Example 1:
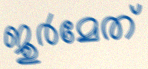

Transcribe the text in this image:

ജുർമേത്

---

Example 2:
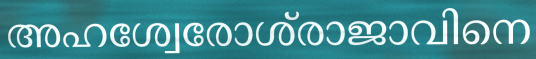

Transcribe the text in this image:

അഹശ്വേരോശ്‌രാജാവിനെ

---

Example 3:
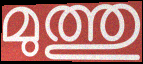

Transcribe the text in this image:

മുത്തു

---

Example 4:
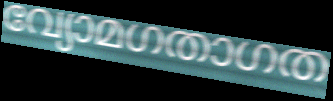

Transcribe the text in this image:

വ്യോമഗതാഗത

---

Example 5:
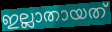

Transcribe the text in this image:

ഇല്ലാതായത്